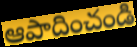
ఆపాదించండి